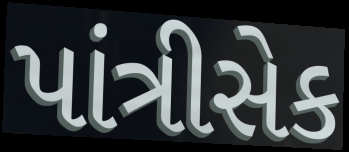
પાંત્રીસેક